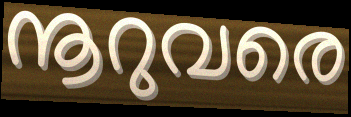
നൂറുവരെ